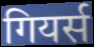
गियर्स